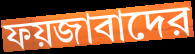
ফয়জাবাদের